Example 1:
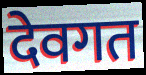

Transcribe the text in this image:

देवगत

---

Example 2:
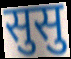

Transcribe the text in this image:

सुसु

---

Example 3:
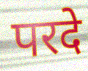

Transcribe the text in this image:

परदे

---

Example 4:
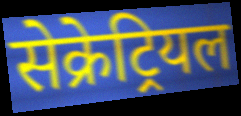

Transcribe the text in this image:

सेक्रेट्रियल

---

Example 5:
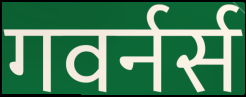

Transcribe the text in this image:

गवर्नर्स